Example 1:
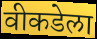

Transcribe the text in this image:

वीकडेला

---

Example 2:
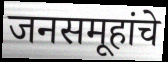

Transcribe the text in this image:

जनसमूहांचे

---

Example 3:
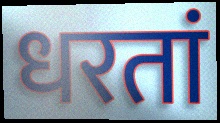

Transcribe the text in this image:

धरतां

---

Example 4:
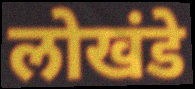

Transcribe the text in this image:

लोखंडे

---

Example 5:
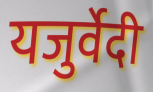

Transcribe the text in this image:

यजुर्वेदी